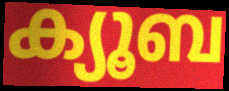
ക്യൂബ